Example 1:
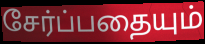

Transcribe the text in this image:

சேர்ப்பதையும்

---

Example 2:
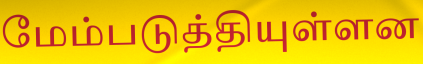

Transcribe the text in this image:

மேம்படுத்தியுள்ளன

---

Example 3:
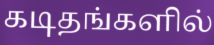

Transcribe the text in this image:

கடிதங்களில்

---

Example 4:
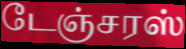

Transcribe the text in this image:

டேஞ்சரஸ்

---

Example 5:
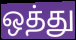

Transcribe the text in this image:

ஒத்து